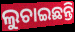
ଲୁଚାଇଛନ୍ତି